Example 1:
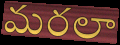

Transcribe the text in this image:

మరలా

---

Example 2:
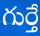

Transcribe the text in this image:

గుర్తే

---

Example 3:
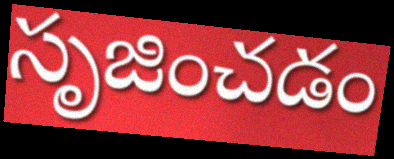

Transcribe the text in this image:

సృజించడం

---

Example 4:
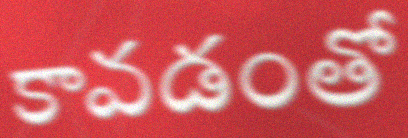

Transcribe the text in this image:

కావడంతో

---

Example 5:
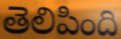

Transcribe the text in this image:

తెలిపింది